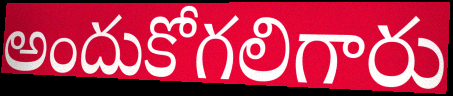
అందుకోగలిగారు